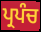
ਪ੍ਰਪੰਚ